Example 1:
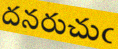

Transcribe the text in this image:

దనరుచుఁ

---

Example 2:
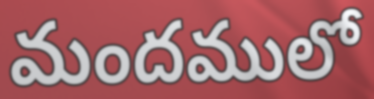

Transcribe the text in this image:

మందములో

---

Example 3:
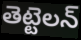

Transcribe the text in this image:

తెట్టెలన్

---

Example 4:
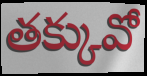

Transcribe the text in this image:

తక్కువో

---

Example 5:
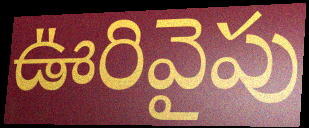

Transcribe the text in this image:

ఊరివైపు